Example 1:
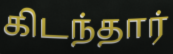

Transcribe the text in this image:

கிடந்தார்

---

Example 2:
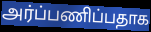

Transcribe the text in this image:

அர்ப்பணிப்பதாக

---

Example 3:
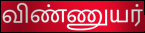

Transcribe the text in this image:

விண்ணுயர்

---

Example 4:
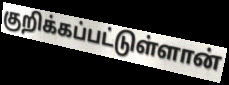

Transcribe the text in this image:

குறிக்கப்பட்டுள்ளான்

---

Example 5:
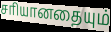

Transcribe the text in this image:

சரியானதையும்